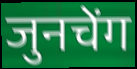
जुनचेंग